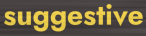
suggestive